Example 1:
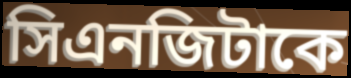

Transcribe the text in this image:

সিএনজিটাকে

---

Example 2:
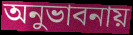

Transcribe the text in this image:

অনুভাবনায়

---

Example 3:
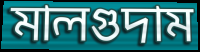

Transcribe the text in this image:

মালগুদাম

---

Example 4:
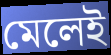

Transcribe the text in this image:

মেলেই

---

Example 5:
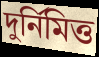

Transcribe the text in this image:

দুর্নিমিত্ত